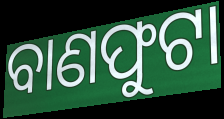
ବାଣଫୁଟା